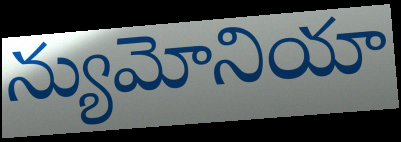
న్యుమోనియా